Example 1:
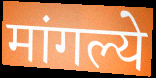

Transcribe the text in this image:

मांगल्ये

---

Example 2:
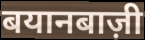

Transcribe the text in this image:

बयानबाज़ी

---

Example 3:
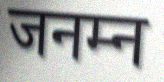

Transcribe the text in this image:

जनम्न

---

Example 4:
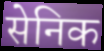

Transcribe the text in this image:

सेनिक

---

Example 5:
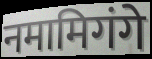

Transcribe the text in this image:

नमामिगंगे